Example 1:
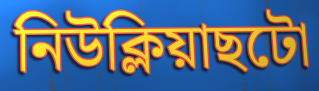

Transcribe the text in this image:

নিউক্লিয়াছটো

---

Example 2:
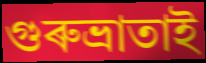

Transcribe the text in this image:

গুৰুভ্ৰাতাই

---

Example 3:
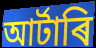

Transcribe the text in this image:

আৰ্টাৰি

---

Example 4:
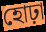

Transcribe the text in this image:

হোঢ়া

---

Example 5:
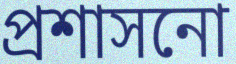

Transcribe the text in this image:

প্ৰশাসনো